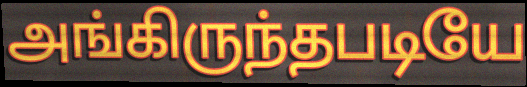
அங்கிருந்தபடியே